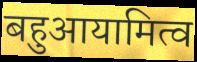
बहुआयामित्व